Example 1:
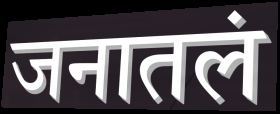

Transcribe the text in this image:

जनातलं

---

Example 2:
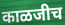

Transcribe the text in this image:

काळजीच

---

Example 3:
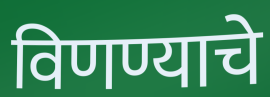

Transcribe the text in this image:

विणण्याचे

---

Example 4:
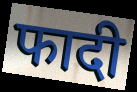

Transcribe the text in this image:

फादी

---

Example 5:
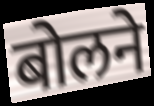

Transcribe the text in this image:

बोलने